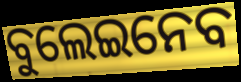
ବୁଲେଇନେବ